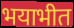
भयाभीत